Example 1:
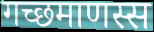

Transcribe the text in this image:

गच्छमाणस्स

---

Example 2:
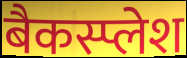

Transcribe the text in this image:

बैकस्प्लेश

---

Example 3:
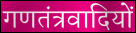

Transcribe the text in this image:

गणतंत्रवादियों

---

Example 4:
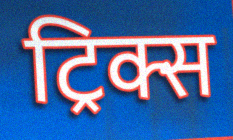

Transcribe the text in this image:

ट्रिक्स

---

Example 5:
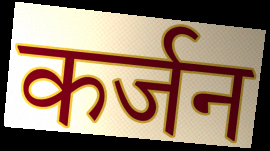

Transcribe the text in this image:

कर्जन